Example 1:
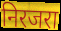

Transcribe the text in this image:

निरजरा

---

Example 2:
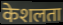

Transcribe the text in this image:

केशलता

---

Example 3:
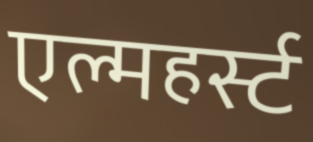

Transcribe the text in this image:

एल्महर्स्ट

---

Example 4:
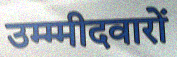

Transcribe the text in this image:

उम्म्मीदवारों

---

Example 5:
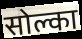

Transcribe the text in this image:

सोल्का